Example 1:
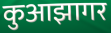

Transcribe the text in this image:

कुआझागर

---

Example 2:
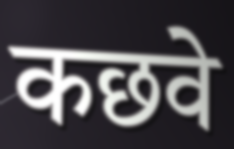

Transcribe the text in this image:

कछवे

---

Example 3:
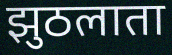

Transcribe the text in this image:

झुठलाता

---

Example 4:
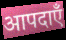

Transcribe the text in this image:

आपदाएँ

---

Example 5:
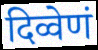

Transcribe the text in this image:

दिव्वेणं